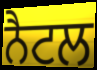
ਨੈਟਲ